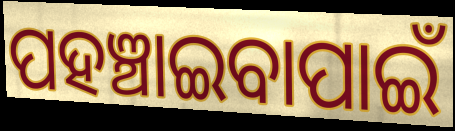
ପହଞ୍ଚାଇବାପାଇଁ